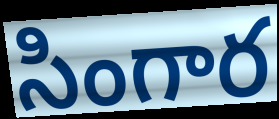
సింగార